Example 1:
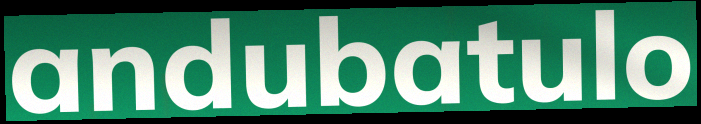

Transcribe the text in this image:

andubatulo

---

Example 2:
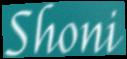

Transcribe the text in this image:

Shoni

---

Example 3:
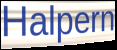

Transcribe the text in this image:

Halpern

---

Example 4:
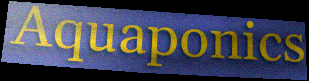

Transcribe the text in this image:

Aquaponics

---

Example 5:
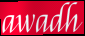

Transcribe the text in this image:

awadh